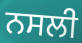
ਨਸਲੀ